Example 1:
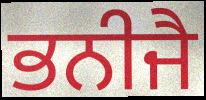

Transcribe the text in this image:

ਭਨੀਜੈ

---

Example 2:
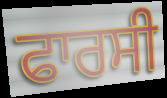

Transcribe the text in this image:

ਫਾਰਸੀ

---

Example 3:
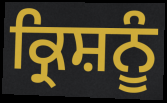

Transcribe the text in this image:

ਕ੍ਰਿਸ਼ਨੂੰ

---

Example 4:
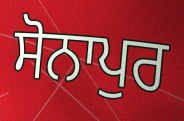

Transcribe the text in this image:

ਸੋਨਾਪੁਰ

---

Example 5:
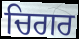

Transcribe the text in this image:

ਚਿਗਰ